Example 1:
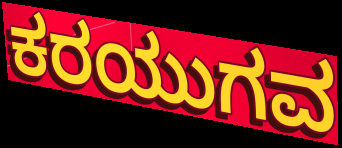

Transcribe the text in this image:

ಕರಯುಗವ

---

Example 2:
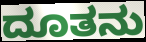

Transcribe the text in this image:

ದೂತನು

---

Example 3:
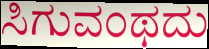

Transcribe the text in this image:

ಸಿಗುವಂಥದು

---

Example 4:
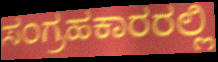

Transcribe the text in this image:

ಸಂಗ್ರಹಕಾರರಲ್ಲಿ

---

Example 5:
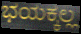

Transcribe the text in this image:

ಭಯಕ್ಕಲ್ಲ